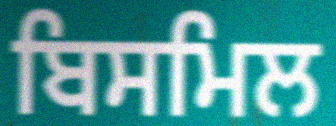
ਬਿਸਮਿਲ